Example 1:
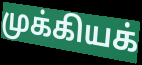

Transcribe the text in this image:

முக்கியக்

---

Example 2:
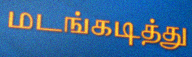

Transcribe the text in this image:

மடங்கடித்து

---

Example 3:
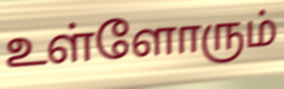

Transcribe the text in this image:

உள்ளோரும்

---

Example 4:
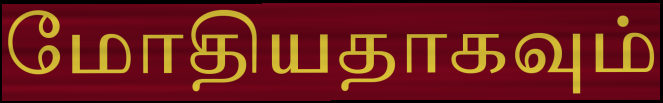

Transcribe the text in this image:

மோதியதாகவும்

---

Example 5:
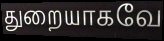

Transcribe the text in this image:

துறையாகவே